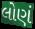
લોણં